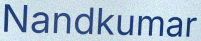
Nandkumar